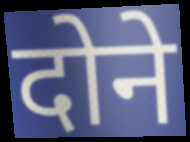
दोने